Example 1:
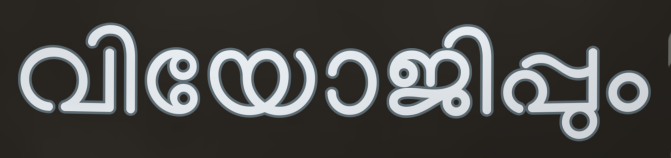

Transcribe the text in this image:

വിയോജിപ്പും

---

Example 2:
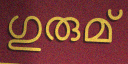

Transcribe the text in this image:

ഗുരുമ്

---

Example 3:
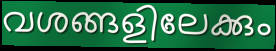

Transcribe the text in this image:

വശങ്ങളിലേക്കും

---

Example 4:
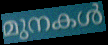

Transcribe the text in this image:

മുനകൾ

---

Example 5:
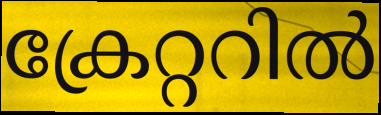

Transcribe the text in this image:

ക്രേറ്ററിൽ